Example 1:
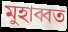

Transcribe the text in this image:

মুহাব্বত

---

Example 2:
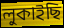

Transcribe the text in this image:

লুকাইছি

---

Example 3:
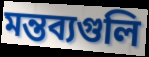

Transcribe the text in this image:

মন্তব্যগুলি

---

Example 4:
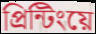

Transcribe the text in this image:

প্রিন্টিংয়ে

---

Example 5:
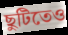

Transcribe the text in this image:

ছুটিতেও